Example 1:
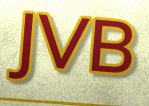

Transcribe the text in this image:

JVB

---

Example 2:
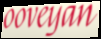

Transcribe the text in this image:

ooveyan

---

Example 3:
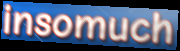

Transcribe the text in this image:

insomuch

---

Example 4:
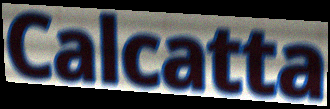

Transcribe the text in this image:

Calcatta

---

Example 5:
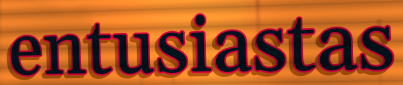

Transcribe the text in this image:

entusiastas